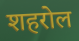
शहरोल